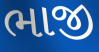
ભાજી